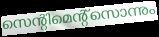
സെന്റിമെന്റ്സൊന്നും